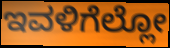
ಇವಳಿಗೆಲ್ಲೋ